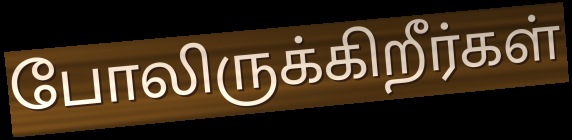
போலிருக்கிறீர்கள்